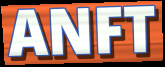
ANFT